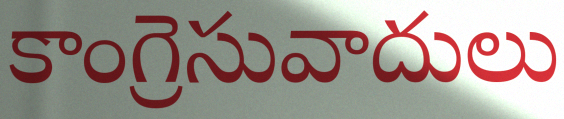
కాంగ్రెసువాదులు